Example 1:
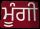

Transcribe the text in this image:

ਮੂੰਗੀ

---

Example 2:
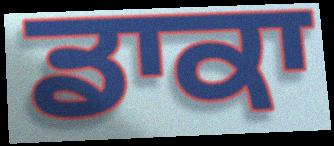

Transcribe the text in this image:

ਡਾਕਾ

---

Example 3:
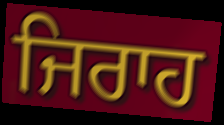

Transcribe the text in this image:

ਜਿਰਾਹ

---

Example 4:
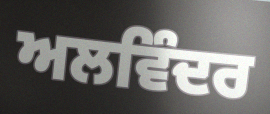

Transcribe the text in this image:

ਅਲਵਿੰਦਰ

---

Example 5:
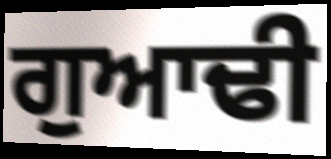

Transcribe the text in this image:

ਗੁਆਢੀ